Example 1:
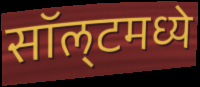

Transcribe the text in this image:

सॉल्टमध्ये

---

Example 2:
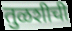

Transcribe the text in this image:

तुळशीची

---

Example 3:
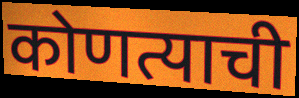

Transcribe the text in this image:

कोणत्याची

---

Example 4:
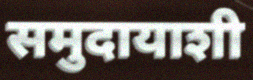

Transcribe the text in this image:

समुदायाशी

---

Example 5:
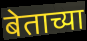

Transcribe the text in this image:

बेताच्या